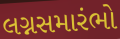
લગ્નસમારંભો